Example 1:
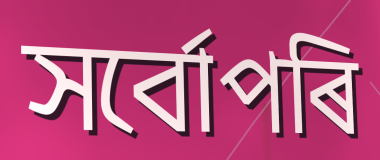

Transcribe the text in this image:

সৰ্বোপৰি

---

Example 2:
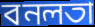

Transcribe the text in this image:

বনলতা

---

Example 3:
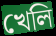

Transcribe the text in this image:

খেলি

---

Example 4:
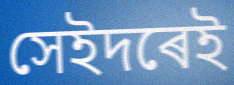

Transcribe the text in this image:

সেইদৰেই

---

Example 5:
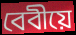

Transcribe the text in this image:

বেবীয়ে